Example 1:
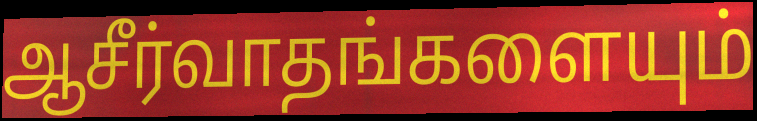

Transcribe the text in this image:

ஆசீர்வாதங்களையும்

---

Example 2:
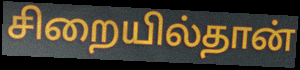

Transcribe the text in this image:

சிறையில்தான்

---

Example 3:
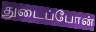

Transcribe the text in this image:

துடைப்போன்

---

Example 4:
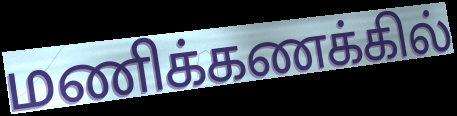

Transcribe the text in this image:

மணிக்கணக்கில்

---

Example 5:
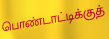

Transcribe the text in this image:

பொண்டாட்டிக்குத்